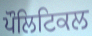
ਪੌਲਿਟਿਕਲ